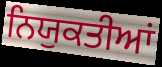
ਨਿਯੁਕਤੀਆਂ